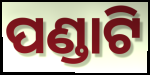
ପଣ୍ଡାଟି